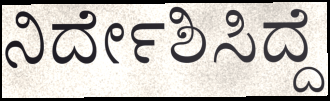
ನಿರ್ದೇಶಿಸಿದ್ದೆ